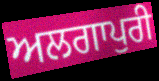
ਅਲਗਾਪੁਰੀ